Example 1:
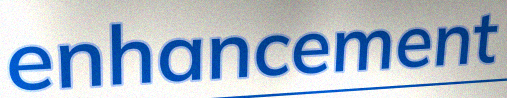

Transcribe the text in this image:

enhancement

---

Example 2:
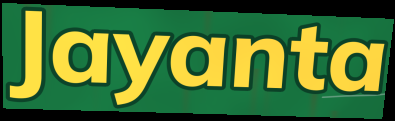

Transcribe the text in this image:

Jayanta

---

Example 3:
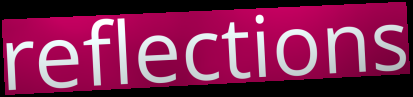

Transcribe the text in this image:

reflections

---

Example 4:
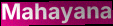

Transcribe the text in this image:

Mahayana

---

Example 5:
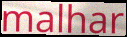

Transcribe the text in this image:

malhar